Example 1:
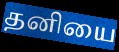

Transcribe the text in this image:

தனியை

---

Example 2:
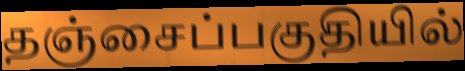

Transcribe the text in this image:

தஞ்சைப்பகுதியில்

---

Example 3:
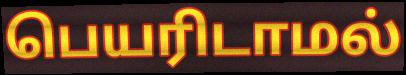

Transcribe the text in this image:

பெயரிடாமல்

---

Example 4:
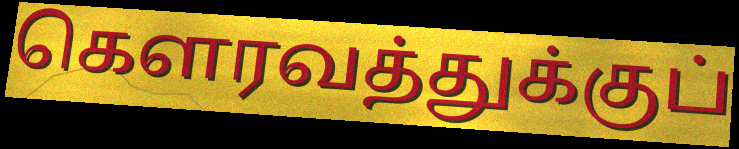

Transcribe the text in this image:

கௌரவத்துக்குப்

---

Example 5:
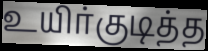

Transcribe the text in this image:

உயிர்குடித்த